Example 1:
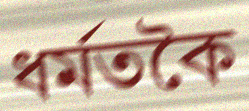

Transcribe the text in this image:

ধৰ্মতকৈ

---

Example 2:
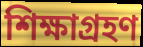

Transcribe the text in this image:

শিক্ষাগ্ৰহণ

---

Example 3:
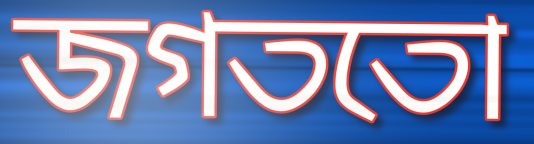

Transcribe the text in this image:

জগততো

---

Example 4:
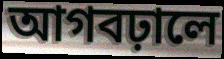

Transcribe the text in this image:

আগবঢ়ালে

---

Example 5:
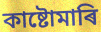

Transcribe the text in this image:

কাষ্টোমাৰি